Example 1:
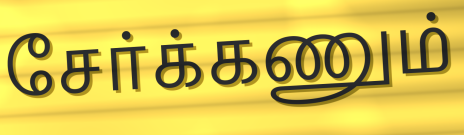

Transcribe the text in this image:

சேர்க்கணும்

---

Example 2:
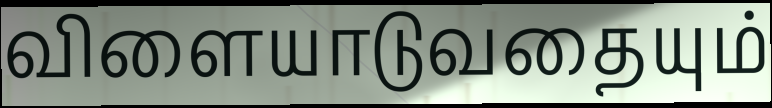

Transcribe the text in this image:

விளையாடுவதையும்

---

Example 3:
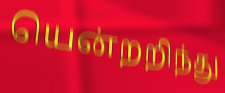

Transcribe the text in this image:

யென்றறிந்து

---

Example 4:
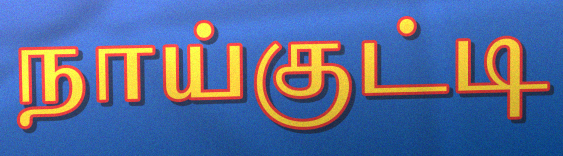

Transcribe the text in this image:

நாய்குட்டி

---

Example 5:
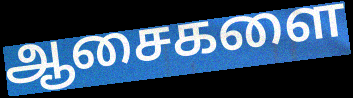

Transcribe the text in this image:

ஆசைகளை